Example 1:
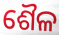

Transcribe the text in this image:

ଶୈଳ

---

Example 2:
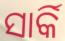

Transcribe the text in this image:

ସାର୍କି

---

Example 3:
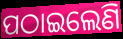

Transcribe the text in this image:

ପଠାଇଲେଣି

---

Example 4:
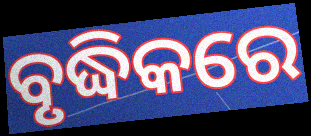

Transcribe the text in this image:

ବୃଦ୍ଧିକରେ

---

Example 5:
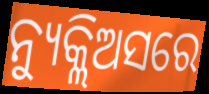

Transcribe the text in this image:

ନ୍ୟୁକ୍ଲିଅସରେ